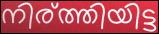
നിര്ത്തിയിട്ട